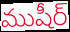
ముషీర్